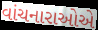
વાંચનારાઓએ